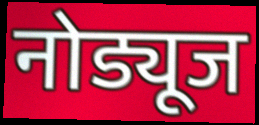
नोड्यूज